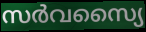
സർവസ്യൈ